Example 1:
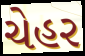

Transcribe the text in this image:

ચેહર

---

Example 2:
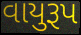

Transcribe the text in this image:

વાયુરૂપ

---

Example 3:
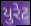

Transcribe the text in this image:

યુરેટ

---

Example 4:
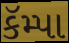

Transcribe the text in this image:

કૅમ્પા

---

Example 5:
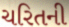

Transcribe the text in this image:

ચરિતની